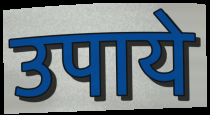
उपाये